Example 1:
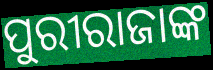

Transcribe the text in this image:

ପୁରୀରାଜାଙ୍କ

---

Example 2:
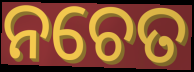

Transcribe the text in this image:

ନଚେତ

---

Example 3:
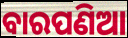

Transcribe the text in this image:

ବାରପଣିଆ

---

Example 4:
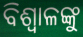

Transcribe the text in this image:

ବିଶ୍ୱାଳଙ୍କୁ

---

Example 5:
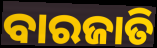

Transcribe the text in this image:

ବାରଜାତି